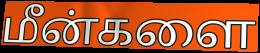
மீன்களை